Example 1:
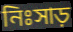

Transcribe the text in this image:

নিঃসাড়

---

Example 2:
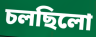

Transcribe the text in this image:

চলছিলো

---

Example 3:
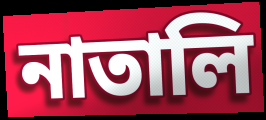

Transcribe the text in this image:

নাতালি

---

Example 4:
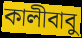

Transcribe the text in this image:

কালীবাবু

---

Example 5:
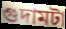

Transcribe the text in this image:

গুদামটা